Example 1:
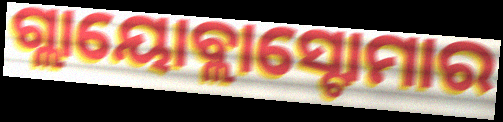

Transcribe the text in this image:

ଗ୍ଲାୟୋବ୍ଲାସ୍ଟୋମାର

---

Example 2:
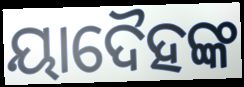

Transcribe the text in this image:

ୟାଦୈହଙ୍କ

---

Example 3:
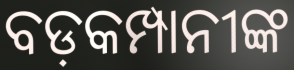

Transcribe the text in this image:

ବଡ଼କମ୍ପାନୀଙ୍କ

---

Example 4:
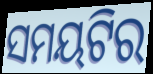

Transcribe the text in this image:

ସମୟଟିର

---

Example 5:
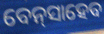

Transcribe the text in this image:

ବେନ୍‌ସାହେବ